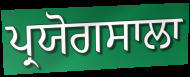
ਪ੍ਰਯੋਗਸਾਲਾ